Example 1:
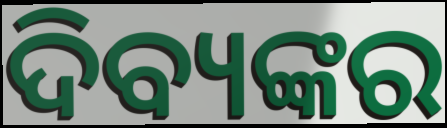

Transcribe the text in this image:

ଦିବ୍ୟଙ୍କର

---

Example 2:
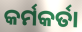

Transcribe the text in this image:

କର୍ମକର୍ତା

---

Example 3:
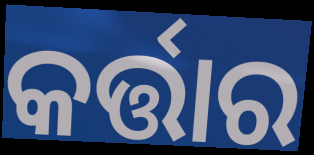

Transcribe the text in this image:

କର୍ତ୍ତାର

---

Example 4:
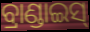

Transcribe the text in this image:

ବ୍ରାଣ୍ଡାଇସ୍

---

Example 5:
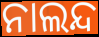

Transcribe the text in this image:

ନାଲନ୍ଦ